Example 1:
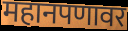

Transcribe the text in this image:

महानपणावर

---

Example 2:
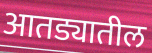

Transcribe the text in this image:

आतड्यातील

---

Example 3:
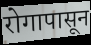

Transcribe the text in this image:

रोगापासून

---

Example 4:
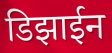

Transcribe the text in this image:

डिझाईन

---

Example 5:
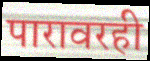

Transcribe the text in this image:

पारावरही